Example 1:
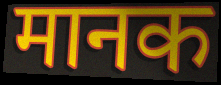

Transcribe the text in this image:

मानक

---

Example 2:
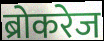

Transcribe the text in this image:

ब्रोकरेज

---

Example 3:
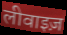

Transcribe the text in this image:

लीवाइज़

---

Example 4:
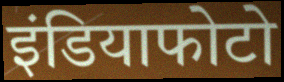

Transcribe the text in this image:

इंडियाफोटो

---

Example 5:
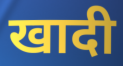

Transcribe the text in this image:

खादी